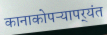
कानाकोपऱ्यापर्यंत